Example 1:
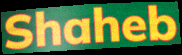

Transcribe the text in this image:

Shaheb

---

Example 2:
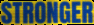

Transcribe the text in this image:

STRONGER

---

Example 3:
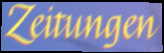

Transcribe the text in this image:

Zeitungen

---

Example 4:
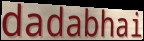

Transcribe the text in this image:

dadabhai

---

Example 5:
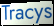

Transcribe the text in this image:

Tracys